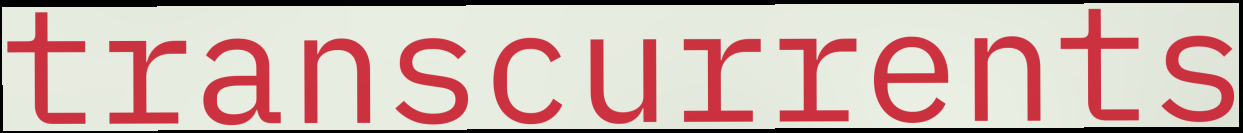
transcurrents